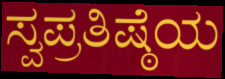
ಸ್ವಪ್ರತಿಷ್ಠೆಯ